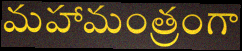
మహామంత్రంగా